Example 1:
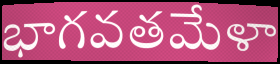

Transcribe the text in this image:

భాగవతమేళా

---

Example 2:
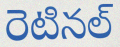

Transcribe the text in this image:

రెటినల్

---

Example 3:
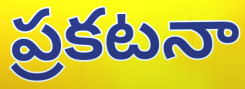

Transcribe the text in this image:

ప్రకటనా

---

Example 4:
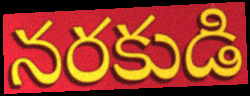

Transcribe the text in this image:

నరకుడి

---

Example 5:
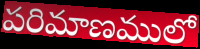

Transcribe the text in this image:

పరిమాణములో